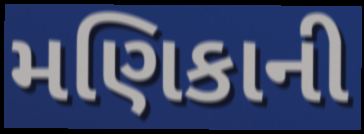
મણિકાની